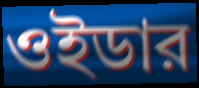
ওইডার